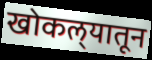
खोकल्यातून